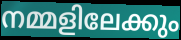
നമ്മളിലേക്കും